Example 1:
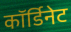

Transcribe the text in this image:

कॉर्डिनेट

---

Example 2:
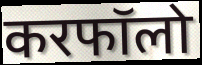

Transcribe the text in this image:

करफॉलो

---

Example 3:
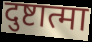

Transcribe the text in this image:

दुष्टात्मा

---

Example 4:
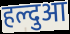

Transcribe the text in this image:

हल्दुआ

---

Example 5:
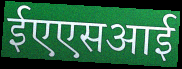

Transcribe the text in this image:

ईएएसआई